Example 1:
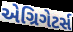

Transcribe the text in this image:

એગ્રિગેટર્સ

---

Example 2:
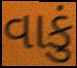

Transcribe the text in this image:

વાકું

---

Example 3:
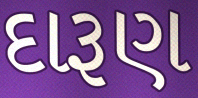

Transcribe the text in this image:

દારૂણ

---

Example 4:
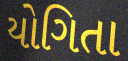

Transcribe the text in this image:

યોગિતા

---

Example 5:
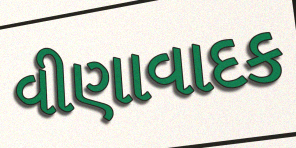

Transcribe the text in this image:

વીણાવાદક